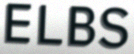
ELBS